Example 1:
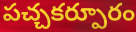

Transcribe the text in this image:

పచ్చకర్పూరం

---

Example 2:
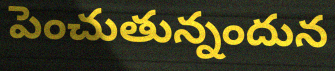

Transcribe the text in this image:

పెంచుతున్నందున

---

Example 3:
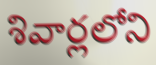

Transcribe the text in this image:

శివార్లలోని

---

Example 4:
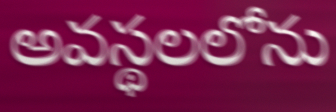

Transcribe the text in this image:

అవస్థలలోను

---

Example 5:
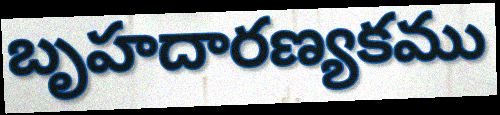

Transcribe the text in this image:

బృహదారణ్యకము